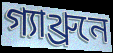
গ্যাথ্রুনে